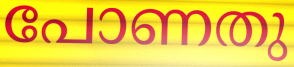
പോണതു